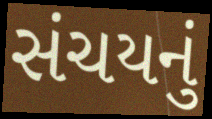
સંચયનું